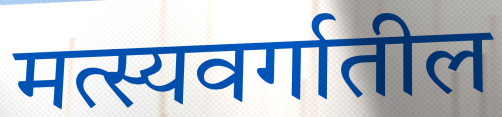
मत्स्यवर्गातील